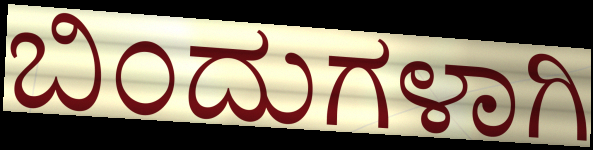
ಬಿಂದುಗಳಾಗಿ